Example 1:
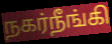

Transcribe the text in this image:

நகர்நீங்கி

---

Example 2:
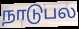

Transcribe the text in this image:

நாடுபல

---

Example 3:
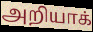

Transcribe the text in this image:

அறியாக்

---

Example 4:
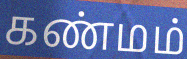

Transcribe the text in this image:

கண்மம்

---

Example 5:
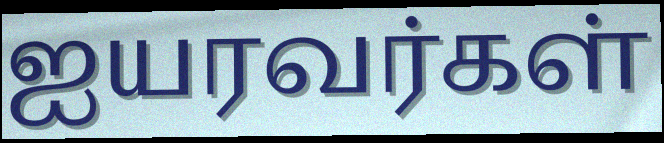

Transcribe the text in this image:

ஐயரவர்கள்